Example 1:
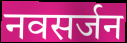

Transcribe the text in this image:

नवसर्जन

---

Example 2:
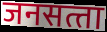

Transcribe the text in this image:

जनसत्‍ता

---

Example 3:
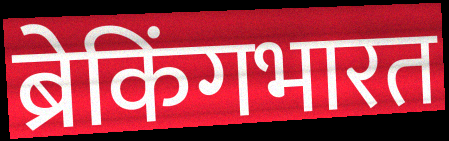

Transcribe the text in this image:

ब्रेकिंगभारत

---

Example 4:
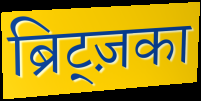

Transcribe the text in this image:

ब्रिट्ज़का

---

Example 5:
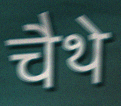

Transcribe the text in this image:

चैथे